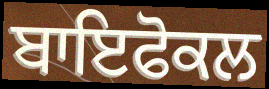
ਬਾਇਫੋਕਲ